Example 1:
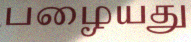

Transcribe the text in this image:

பழையது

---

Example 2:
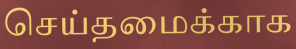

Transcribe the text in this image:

செய்தமைக்காக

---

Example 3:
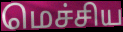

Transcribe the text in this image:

மெச்சிய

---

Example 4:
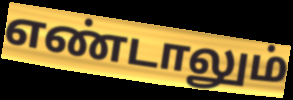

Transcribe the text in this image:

எண்டாலும்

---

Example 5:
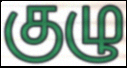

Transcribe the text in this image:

குழு